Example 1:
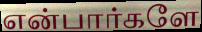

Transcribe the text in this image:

என்பார்களே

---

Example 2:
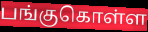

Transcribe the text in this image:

பங்குகொள்ள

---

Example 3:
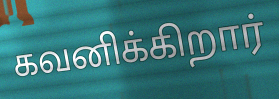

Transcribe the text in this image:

கவனிக்கிறார்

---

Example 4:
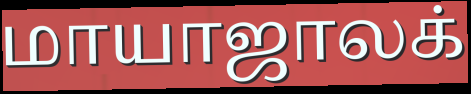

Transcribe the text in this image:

மாயாஜாலக்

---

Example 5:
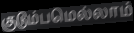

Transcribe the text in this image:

குடும்பமெல்லாம்